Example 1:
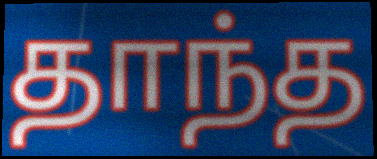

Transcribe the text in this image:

தாந்த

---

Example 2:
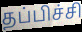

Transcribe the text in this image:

தப்பிச்சி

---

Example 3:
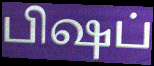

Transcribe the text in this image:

பிஷப்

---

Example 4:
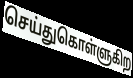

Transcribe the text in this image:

செய்துகொள்ளுகிற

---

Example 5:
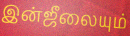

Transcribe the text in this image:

இன்ஜீலையும்